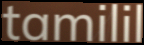
tamilil